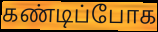
கண்டிப்போக